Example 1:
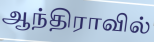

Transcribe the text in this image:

ஆந்திராவில்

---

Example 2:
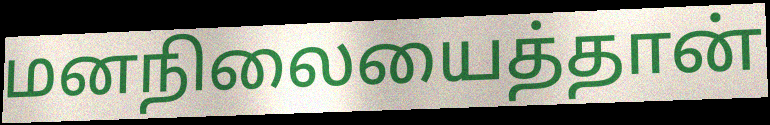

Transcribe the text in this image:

மனநிலையைத்தான்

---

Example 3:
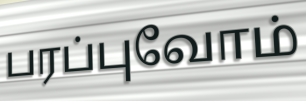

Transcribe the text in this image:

பரப்புவோம்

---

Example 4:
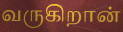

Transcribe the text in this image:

வருகிறான்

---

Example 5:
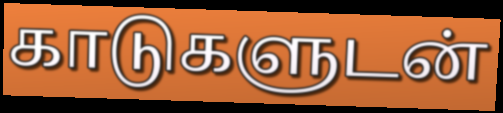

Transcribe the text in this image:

காடுகளுடன்